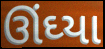
ઊંઘ્યા